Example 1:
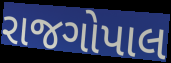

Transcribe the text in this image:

રાજગોપાલ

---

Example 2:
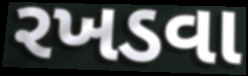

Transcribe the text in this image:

રખડવા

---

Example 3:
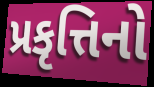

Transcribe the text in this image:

પ્રકૃત્તિનો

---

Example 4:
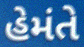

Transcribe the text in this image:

હેમંતે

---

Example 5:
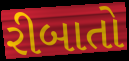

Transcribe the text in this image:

રીબાતો